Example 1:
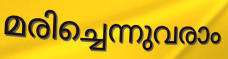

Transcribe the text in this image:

മരിച്ചെന്നുവരാം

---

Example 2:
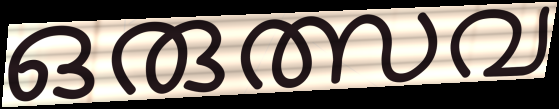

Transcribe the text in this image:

ഒരുത്സവ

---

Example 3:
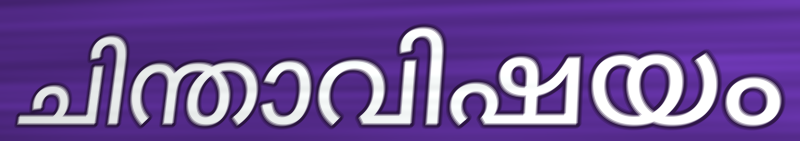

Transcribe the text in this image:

ചിന്താവിഷയം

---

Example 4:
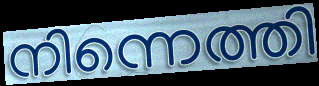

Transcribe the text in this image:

നിന്നെത്തി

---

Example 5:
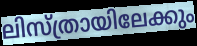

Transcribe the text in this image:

ലിസ്ത്രായിലേക്കും